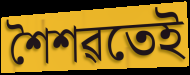
শৈশৱতেই